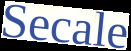
Secale